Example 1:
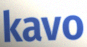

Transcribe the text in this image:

kavo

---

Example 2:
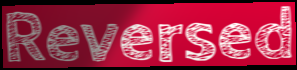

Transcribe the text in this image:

Reversed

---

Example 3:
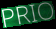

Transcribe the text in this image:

PRIO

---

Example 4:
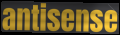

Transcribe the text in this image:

antisense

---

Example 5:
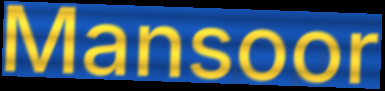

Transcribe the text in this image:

Mansoor